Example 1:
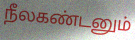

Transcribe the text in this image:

நீலகண்டனும்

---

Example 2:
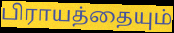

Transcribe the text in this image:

பிராயத்தையும்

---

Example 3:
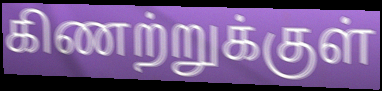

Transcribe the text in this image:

கிணற்றுக்குள்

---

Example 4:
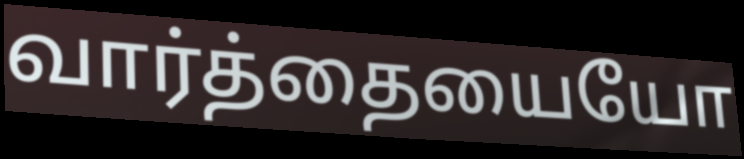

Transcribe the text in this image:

வார்த்தையையோ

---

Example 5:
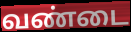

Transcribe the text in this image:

வண்டை